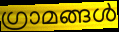
ഗ്രാമങ്ങൾ